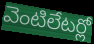
వెంటిలేటర్లో